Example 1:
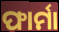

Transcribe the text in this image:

ଫାର୍ମା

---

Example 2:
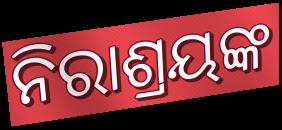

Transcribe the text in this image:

ନିରାଶ୍ରୟଙ୍କ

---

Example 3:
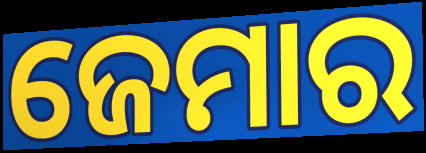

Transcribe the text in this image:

ଜେମାର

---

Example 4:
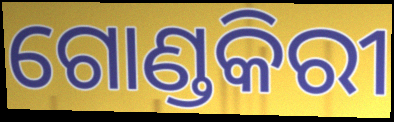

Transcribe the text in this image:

ଗୋଣ୍ଡକିରୀ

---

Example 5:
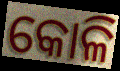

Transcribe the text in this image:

କୋଳି